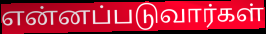
என்னப்படுவார்கள்